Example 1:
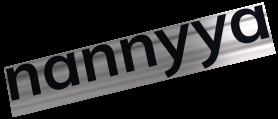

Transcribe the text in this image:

nannyya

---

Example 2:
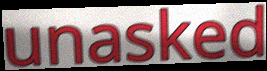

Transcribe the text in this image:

unasked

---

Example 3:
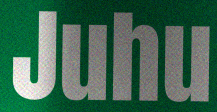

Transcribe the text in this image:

Juhu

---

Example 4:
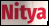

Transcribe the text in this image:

Nitya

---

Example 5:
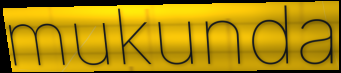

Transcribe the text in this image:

mukunda